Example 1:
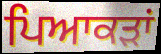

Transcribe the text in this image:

ਪਿਆਕੜਾਂ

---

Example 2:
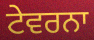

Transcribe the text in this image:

ਟੇਵਰਨਾ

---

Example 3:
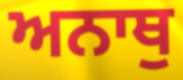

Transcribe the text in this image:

ਅਨਾਥੁ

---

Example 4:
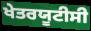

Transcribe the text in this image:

ਖੇਤਰਯੂਟੀਸੀ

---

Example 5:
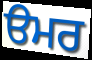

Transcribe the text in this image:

ੳਮਰ